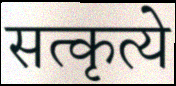
सत्कृत्ये